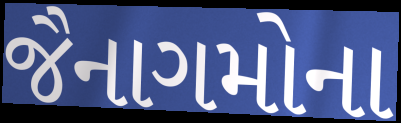
જૈનાગમોના